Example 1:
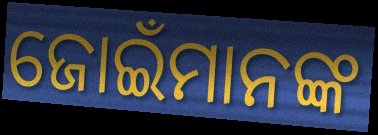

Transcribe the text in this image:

ଜୋଇଁମାନଙ୍କ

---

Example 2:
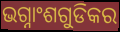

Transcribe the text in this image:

ଭଗ୍ନାଂଶଗୁଡିକର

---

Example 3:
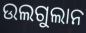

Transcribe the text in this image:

ଉଲଗୁଲାନ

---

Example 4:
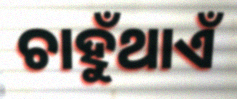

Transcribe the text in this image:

ଚାହୁଁଥାଏଁ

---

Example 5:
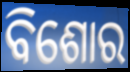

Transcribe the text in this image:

ବିଶୋର